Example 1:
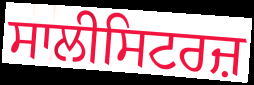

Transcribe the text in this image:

ਸਾਲੀਸਿਟਰਜ਼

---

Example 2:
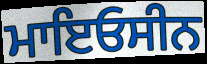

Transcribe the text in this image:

ਮਾਇਓਸੀਨ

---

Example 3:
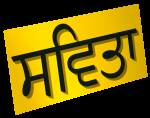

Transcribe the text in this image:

ਸਵਿਤਾ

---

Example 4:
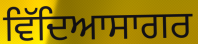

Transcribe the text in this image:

ਵਿੱਦਿਆਸਾਗਰ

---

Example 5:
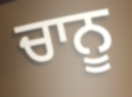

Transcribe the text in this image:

ਚਾਨੂ